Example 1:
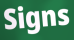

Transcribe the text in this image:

Signs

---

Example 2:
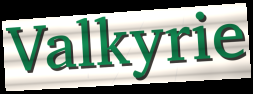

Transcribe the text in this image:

Valkyrie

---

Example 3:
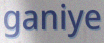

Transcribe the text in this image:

ganiye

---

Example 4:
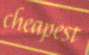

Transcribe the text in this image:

cheapest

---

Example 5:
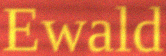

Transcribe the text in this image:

Ewald